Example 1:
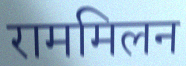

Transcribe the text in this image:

राममिलन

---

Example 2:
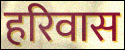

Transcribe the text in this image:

हरिवास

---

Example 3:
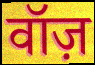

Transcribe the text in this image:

वॉज़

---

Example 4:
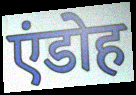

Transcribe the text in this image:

एंडोह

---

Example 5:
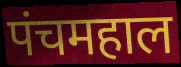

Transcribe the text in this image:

पंचमहाल